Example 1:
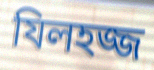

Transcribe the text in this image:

যিলহজ্জ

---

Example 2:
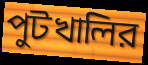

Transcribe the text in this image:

পুটখালির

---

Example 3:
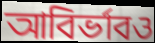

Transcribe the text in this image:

আবির্ভাবও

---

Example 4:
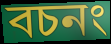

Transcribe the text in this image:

বচনং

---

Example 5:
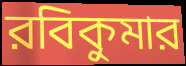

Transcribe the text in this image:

রবিকুমার